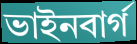
ভাইনবার্গ